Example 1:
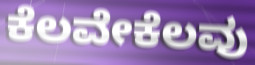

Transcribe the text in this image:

ಕೆಲವೇಕೆಲವು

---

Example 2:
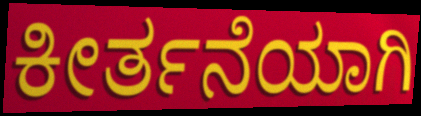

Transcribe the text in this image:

ಕೀರ್ತನೆಯಾಗಿ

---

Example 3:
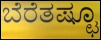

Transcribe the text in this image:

ಬೆರೆತಷ್ಟೂ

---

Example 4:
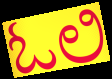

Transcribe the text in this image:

ಓಲಿ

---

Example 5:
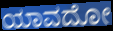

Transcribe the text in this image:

ಯಾವದೋ